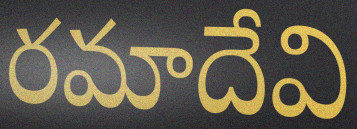
రమాదేవి